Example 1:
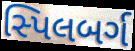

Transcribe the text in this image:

સ્પિલબર્ગ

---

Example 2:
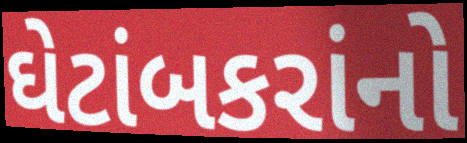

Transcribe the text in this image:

ઘેટાંબકરાંનો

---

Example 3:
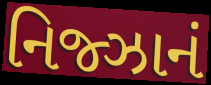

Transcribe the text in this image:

નિજ્ઝાનં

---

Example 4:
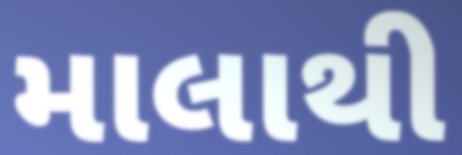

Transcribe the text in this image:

માલાથી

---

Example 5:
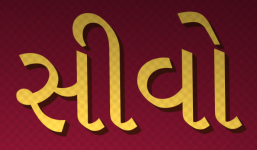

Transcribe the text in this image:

સીવો